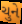
ચુને